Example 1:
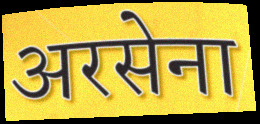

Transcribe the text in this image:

अरसेना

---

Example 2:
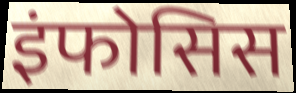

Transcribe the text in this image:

इंफोसिस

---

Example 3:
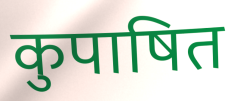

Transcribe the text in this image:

कुपाषित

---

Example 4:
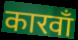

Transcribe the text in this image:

कारवाँ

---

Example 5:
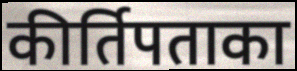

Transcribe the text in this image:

कीर्तिपताका